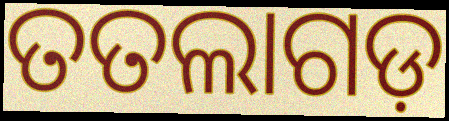
ତତଲାଗଡ଼